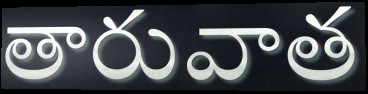
తారువాత